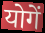
योगें